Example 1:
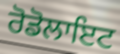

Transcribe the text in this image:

ਰੋਡੋਲਾਇਟ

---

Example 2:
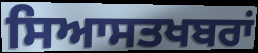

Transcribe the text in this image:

ਸਿਆਸਤਖਬਰਾਂ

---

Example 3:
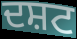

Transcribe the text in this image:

ਦਸ਼ਟ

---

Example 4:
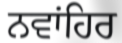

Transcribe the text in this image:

ਨਵਾਂਹਿਰ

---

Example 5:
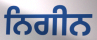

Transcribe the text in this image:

ਨਿਗੀਨ